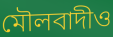
মৌলবাদীও